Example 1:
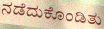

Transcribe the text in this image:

ನಡೆದುಕೊಂಡಿತು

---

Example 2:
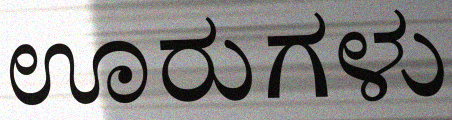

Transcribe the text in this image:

ಊರುಗಳು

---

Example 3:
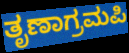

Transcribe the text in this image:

ತೃಣಾಗ್ರಮಪಿ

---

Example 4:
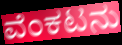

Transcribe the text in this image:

ವೆಂಕಟನು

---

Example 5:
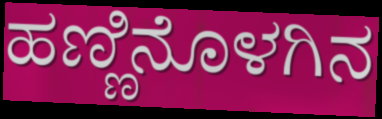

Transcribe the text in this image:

ಹಣ್ಣಿನೊಳಗಿನ